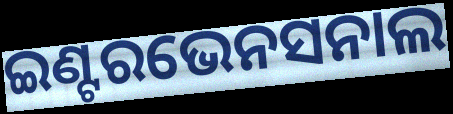
ଇଣ୍ଟରଭେନସନାଲ